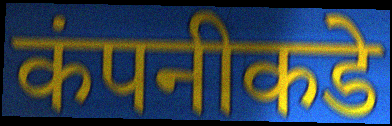
कंपनीकडे